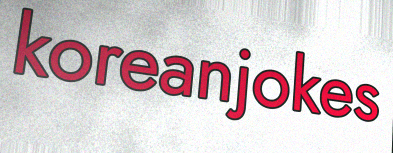
koreanjokes